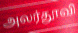
அலர்தூவி